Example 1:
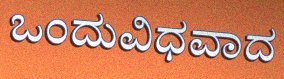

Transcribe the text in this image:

ಒಂದುವಿಧವಾದ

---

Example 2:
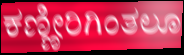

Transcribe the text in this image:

ಕಣ್ಣೀರಿಗಿಂತಲೂ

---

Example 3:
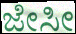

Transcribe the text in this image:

ಜೇಸೀ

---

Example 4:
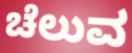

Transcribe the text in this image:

ಚೆಲುವ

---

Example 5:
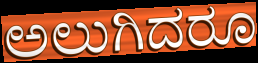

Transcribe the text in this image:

ಅಲುಗಿದರೂ